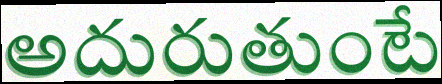
అదురుతుంటే